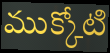
ముక్కోటి